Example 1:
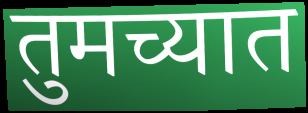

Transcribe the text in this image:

तुमच्यात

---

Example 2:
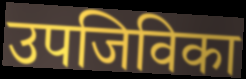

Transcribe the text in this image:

उपजिविका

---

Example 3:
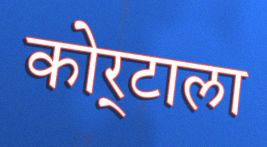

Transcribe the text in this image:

कोर्टाला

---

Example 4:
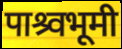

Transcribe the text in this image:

पाश्र्वभूमी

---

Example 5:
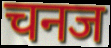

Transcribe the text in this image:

चनज